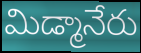
మిడ్మానేరు